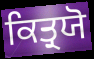
ਕਿਤ੍ਰਯੋ